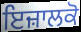
ਇਜ਼ਾਲਕੋ